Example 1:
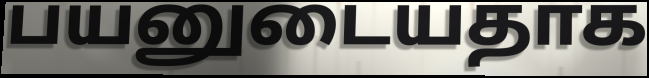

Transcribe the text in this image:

பயனுடையதாக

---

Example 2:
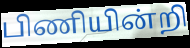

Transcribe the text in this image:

பிணியின்றி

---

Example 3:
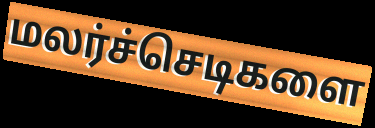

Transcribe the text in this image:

மலர்ச்செடிகளை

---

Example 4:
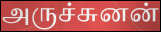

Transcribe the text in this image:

அருச்சுனன்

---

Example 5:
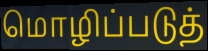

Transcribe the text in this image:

மொழிப்படுத்